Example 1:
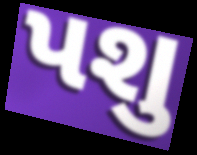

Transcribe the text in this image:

પશુ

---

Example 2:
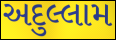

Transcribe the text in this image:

અદુલ્લામ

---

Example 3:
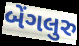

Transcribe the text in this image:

બેંગલુરુ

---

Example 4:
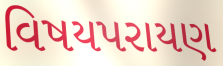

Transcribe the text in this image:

વિષયપરાયણ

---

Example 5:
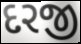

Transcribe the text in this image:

દરજી